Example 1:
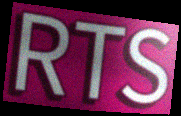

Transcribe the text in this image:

RTS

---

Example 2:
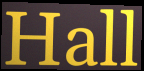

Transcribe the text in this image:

Hall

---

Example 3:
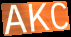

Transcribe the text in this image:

AKC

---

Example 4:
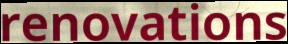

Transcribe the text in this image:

renovations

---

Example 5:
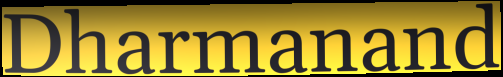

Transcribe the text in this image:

Dharmanand